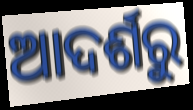
ଆଦର୍ଶରୁ